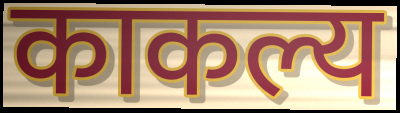
काकल्य